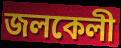
জলকেলী